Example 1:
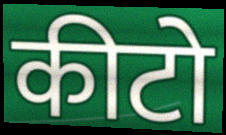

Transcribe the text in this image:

कीटो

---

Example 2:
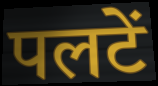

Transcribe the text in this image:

पलटें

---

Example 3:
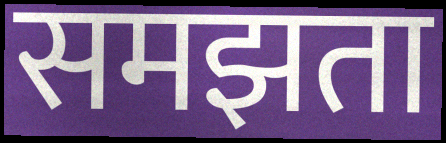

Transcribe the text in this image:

समझता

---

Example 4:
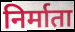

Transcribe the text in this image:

निर्माता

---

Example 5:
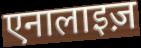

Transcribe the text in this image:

एनालाइज़